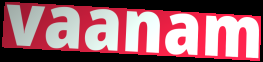
vaanam